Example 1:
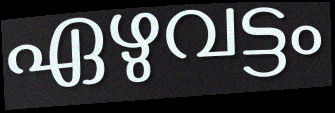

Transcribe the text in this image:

ഏഴുവട്ടം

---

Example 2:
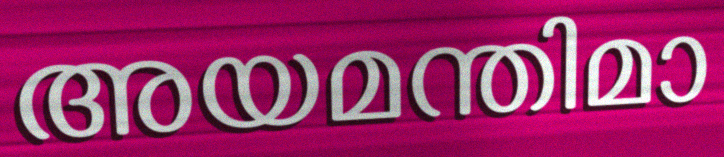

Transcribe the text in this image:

അയമന്തിമാ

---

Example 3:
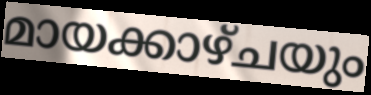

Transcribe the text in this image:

മായക്കാഴ്ചയും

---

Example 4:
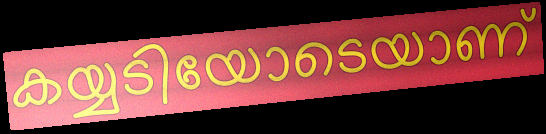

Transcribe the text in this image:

കയ്യടിയോടെയാണ്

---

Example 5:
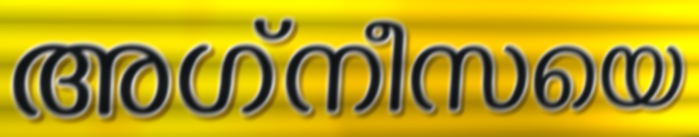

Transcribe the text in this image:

അഗ്‌നീസയെ